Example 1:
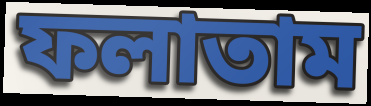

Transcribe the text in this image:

ফলাতাম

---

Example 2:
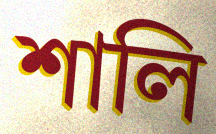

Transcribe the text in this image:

শালি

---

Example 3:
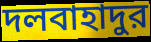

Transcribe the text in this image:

দলবাহাদুর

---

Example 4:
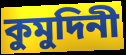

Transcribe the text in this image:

কুমুদিনী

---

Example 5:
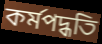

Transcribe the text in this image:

কর্মপদ্ধতি